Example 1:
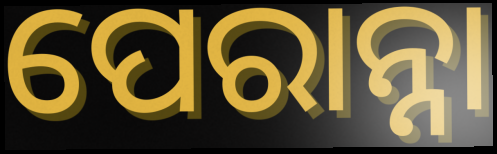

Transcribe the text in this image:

ପେରାନ୍ନା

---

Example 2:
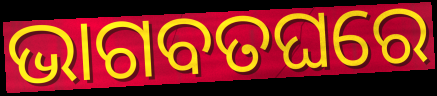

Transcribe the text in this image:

ଭାଗବତଘରେ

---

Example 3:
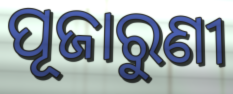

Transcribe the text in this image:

ପୂଜାରୁଣୀ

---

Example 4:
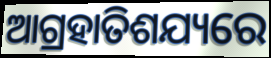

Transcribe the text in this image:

ଆଗ୍ରହାତିଶଯ୍ୟରେ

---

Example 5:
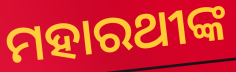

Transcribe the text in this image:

ମହାରଥୀଙ୍କ